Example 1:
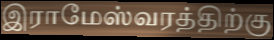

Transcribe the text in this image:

இராமேஸ்வரத்திற்கு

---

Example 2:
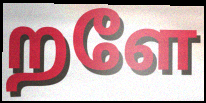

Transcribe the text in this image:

றளே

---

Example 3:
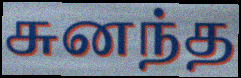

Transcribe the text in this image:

சுனந்த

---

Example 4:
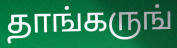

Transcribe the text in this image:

தாங்கருங்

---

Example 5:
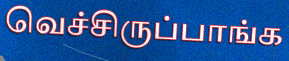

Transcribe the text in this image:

வெச்சிருப்பாங்க